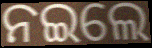
ନଇଲେ